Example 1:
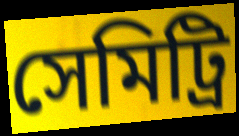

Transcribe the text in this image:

সেমিট্রি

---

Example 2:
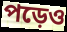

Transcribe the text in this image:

পড়েও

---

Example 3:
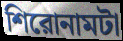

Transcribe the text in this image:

শিরোনামটা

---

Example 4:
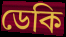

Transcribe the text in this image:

ডেকি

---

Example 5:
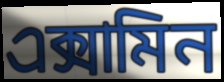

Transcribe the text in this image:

এক্সামিন